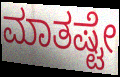
ಮಾತಷ್ಟೇ